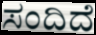
ಸಂದಿದೆ